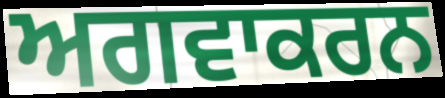
ਅਗਵਾਕਰਨ